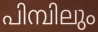
പിമ്പിലും